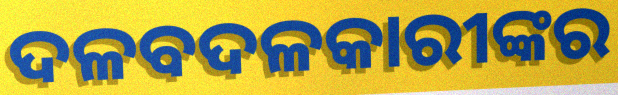
ଦଳବଦଳକାରୀଙ୍କର